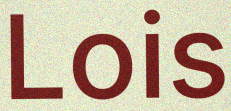
Lois